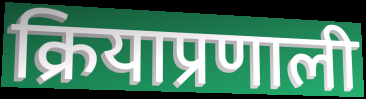
क्रियाप्रणाली